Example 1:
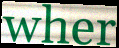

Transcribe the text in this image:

wher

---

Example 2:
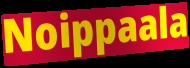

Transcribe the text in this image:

Noippaala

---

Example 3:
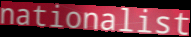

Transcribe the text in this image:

nationalist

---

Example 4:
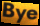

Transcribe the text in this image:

Bye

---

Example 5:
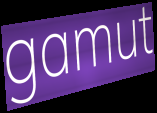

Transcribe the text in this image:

gamut